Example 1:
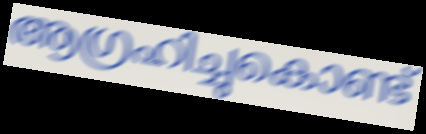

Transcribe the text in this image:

ആഗ്രഹിച്ചുകൊണ്ട്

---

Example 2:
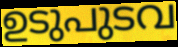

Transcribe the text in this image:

ഉടുപുടവ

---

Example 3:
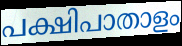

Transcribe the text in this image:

പക്ഷിപാതാളം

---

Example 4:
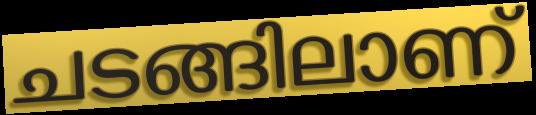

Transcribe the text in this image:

ചടങ്ങിലാണ്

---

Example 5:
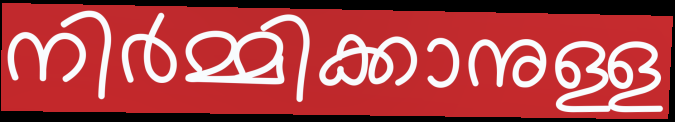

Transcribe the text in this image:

നിർമ്മിക്കാനുള്ള